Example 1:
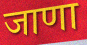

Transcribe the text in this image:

जाणा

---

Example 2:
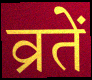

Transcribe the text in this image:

व्रतें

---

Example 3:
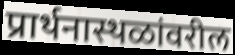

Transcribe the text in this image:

प्रार्थनास्थळांवरील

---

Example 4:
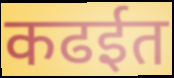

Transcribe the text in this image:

कढईत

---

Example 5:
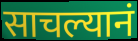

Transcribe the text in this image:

साचल्यानं